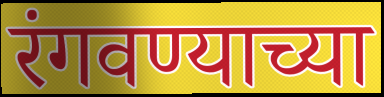
रंगवण्याच्या